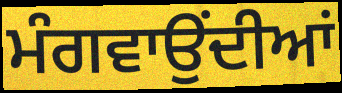
ਮੰਗਵਾਉਂਦੀਆਂ